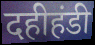
दहीहंडी